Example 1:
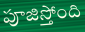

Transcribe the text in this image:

పూజిస్తోంది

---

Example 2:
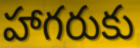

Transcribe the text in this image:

హాగరుకు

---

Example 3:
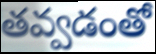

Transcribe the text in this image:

తవ్వడంతో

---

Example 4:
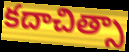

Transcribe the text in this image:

కదాచిత్సా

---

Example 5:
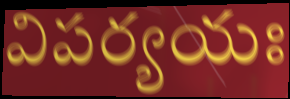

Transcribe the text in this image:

విపర్యయః